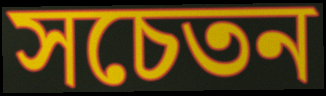
সচেতন